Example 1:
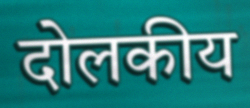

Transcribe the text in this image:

दोलकीय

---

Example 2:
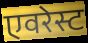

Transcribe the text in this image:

एवरेस्ट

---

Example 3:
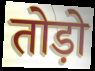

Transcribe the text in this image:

तोड़ो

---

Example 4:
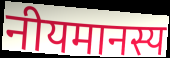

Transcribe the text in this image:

नीयमानस्य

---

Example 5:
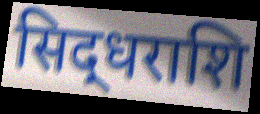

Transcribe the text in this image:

सिद्धराशि